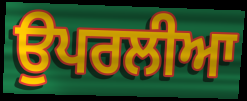
ਉਪਰਲੀਆ